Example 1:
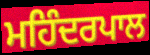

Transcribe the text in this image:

ਮਹਿੰਦਰਪਾਲ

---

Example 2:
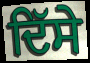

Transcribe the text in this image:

ਦਿੱਸੇ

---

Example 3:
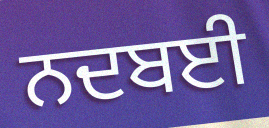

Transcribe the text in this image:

ਨਦਬਈ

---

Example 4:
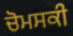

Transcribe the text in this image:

ਚੋਮਸਕੀ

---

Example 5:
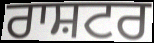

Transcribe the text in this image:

ਰਾਸ਼ਟਰ